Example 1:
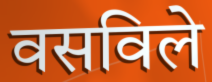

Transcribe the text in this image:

वसविले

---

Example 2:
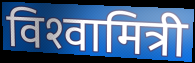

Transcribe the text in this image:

विश्वामित्री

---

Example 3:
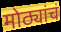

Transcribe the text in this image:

मोठ्यांचं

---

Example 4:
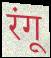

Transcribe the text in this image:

रंगू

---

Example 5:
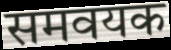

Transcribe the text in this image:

समवयक